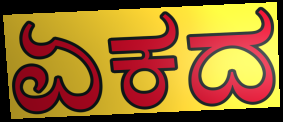
ಏಕದ